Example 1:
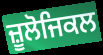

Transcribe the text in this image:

ਜ਼ੂਲੋਜਿਕਲ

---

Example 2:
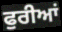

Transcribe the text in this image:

ਫੁਰੀਆਂ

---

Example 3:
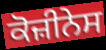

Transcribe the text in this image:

ਕੋਜ਼ੀਨੇਸ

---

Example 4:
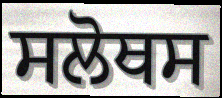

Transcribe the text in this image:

ਸਲੋਥਸ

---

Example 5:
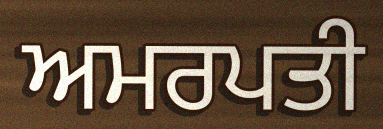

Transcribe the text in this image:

ਅਮਰਪਤੀ